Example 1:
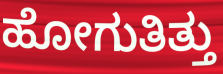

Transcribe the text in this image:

ಹೋಗುತಿತ್ತು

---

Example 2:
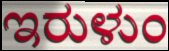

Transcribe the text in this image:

ಇರುಳುಂ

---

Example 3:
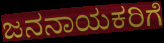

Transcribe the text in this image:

ಜನನಾಯಕರಿಗೆ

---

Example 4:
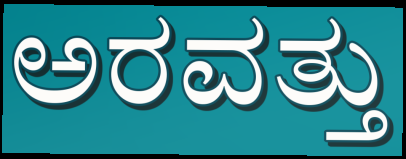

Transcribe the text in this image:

ಅರವತ್ತು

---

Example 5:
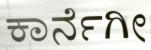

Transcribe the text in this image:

ಕಾರ್ನೆಗೀ